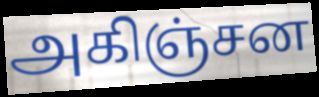
அகிஞ்சன